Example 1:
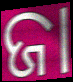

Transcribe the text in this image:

ଜା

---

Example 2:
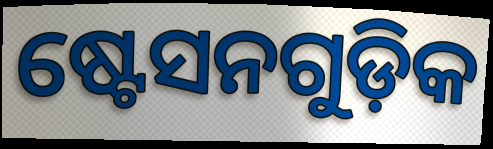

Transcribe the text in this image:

ଷ୍ଟେସନଗୁଡ଼ିକ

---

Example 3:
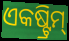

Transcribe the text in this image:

ଏକଷ୍ଟ୍ରିମ୍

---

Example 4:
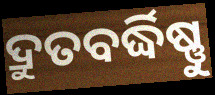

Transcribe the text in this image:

ଦ୍ରୁତବର୍ଦ୍ଧିଷ୍ଣୁ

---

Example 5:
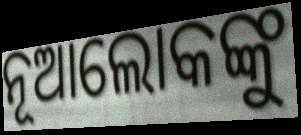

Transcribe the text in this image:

ନୂଆଲୋକଙ୍କୁ